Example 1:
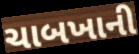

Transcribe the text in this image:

ચાબખાની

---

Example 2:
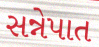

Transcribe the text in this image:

સન્નેપાત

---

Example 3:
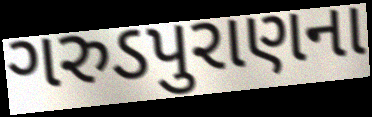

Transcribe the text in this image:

ગરુડપુરાણના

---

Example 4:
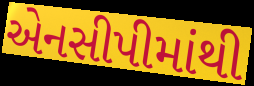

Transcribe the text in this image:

એનસીપીમાંથી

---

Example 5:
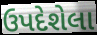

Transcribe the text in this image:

ઉપદેશેલા